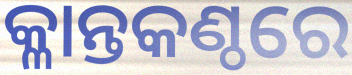
କ୍ଳାନ୍ତକଣ୍ଠରେ